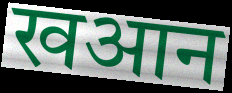
खआन